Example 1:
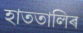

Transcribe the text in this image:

হাততালিৰ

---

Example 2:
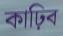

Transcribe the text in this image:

কাঢ়িব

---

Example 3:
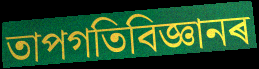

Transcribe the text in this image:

তাপগতিবিজ্ঞানৰ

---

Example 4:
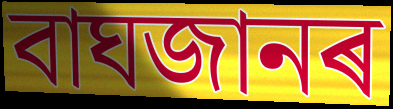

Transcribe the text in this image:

বাঘজানৰ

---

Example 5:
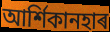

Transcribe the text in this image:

আৰ্শিকানহাৰ